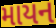
માયન